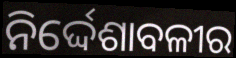
ନିର୍ଦ୍ଦେଶାବଳୀର